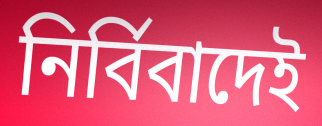
নির্বিবাদেই